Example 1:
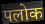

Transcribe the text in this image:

पलोक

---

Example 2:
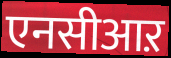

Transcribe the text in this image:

एनसीआऱ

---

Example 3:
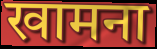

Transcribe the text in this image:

खामना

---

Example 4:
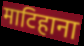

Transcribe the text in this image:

माटिहाना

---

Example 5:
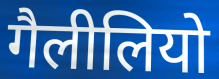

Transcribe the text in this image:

गैलीलियो